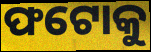
ଫଟୋକୁ